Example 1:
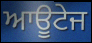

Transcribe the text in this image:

ਆਊਟੇਜ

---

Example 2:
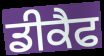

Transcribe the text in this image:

ਡੀਕੈਫ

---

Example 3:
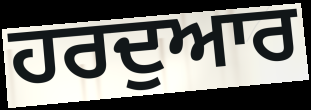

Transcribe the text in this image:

ਹਰਦੁਆਰ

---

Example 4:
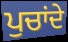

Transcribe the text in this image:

ਪੁਚਾਂਦੇ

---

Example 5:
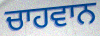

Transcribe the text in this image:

ਚਾਹਵਾਨ